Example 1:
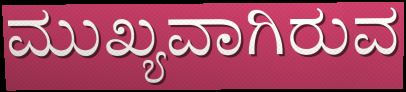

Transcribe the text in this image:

ಮುಖ್ಯವಾಗಿರುವ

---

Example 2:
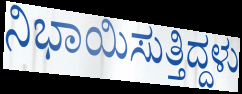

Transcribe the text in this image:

ನಿಭಾಯಿಸುತ್ತಿದ್ದಳು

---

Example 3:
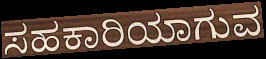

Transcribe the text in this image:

ಸಹಕಾರಿಯಾಗುವ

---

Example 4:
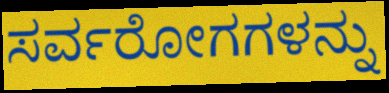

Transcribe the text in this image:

ಸರ್ವರೋಗಗಳನ್ನು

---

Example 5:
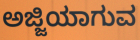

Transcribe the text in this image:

ಅಜ್ಜಿಯಾಗುವ